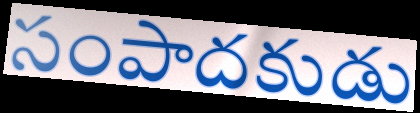
సంపాదకుడు